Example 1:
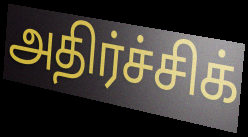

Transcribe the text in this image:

அதிர்ச்சிக்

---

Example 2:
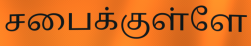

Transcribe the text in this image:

சபைக்குள்ளே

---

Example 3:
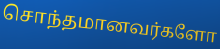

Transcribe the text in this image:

சொந்தமானவர்களோ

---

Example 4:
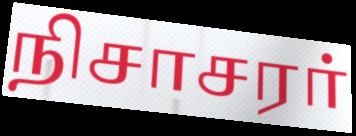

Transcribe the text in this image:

நிசாசரர்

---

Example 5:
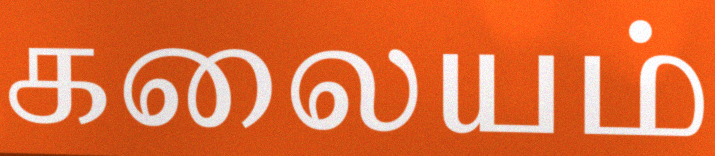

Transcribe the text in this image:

கலையம்